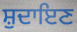
ਸ਼ੁਦਾਇਣ